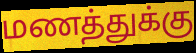
மணத்துக்கு